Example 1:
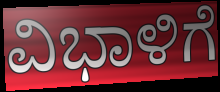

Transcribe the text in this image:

ವಿಭಾಳಿಗೆ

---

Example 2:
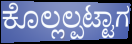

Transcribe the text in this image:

ಕೊಲ್ಲಲ್ಪಟ್ಟಾಗ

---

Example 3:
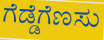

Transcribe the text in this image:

ಗೆಡ್ಡೆಗೆಣಸು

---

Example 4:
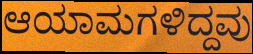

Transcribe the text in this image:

ಆಯಾಮಗಳಿದ್ದವು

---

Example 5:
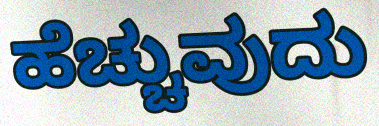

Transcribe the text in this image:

ಹೆಚ್ಚುವುದು